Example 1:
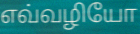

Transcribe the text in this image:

எவ்வழியோ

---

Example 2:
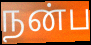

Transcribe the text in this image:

நன்ப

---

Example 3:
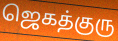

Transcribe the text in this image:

ஜெகத்குரு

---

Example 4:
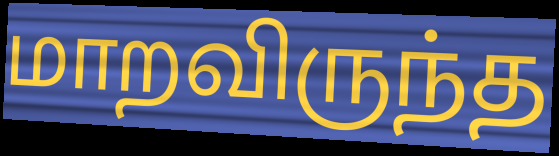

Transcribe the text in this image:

மாறவிருந்த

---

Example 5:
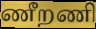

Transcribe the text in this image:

ணீறணி